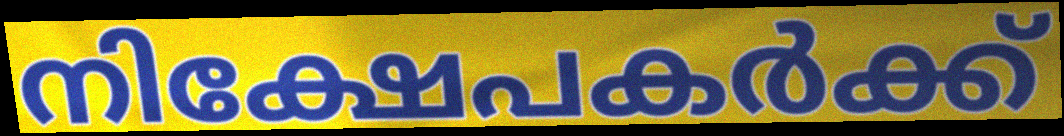
നിക്ഷേപകർക്ക്